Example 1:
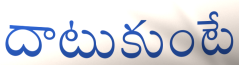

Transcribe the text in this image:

దాటుకుంటే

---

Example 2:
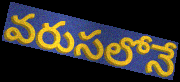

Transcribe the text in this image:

వరుసలోనే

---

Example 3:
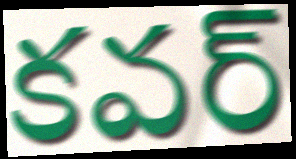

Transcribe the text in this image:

కవర్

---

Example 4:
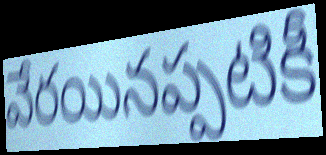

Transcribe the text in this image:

వేరయినప్పటికీ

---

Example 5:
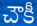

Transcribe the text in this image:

చౌకీ